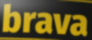
brava